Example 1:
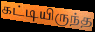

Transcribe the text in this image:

கட்டியிருந்த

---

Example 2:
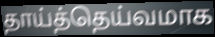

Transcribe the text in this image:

தாய்த்தெய்வமாக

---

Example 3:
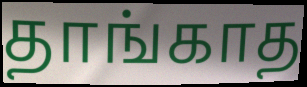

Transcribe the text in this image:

தாங்காத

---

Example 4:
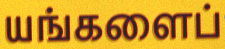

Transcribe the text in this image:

யங்களைப்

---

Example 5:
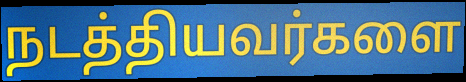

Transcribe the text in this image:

நடத்தியவர்களை